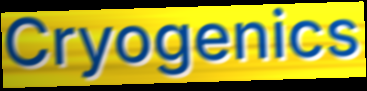
Cryogenics